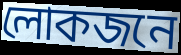
লোকজনে